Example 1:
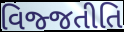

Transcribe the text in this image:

વિજ્જતીતિ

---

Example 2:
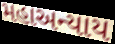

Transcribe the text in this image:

મહાઅન્યાય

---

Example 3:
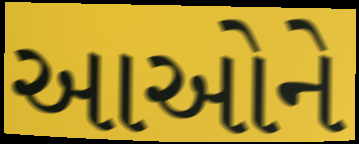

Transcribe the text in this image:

આઓને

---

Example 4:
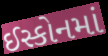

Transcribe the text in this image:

ઈસ્કોનમાં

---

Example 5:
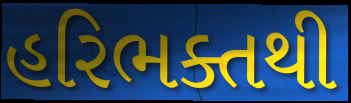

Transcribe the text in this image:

હરિભક્તથી